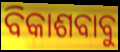
ବିକାଶବାବୁ